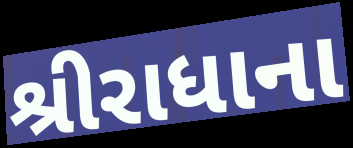
શ્રીરાધાના